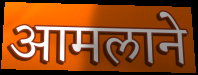
आमलाने